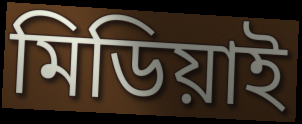
মিডিয়াই